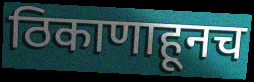
ठिकाणाहूनच